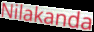
Nilakanda